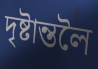
দৃষ্টান্তলৈ